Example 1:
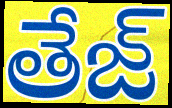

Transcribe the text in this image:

తేజ్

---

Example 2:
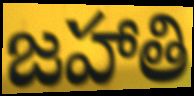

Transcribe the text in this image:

జహాతి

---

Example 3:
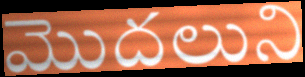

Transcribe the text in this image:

మొదలుని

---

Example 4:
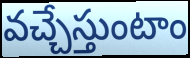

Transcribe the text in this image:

వచ్చేస్తుంటాం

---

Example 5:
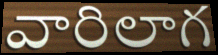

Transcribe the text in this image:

వారిలాగ